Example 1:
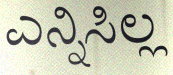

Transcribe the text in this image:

ಎನ್ನಿಸಿಲ್ಲ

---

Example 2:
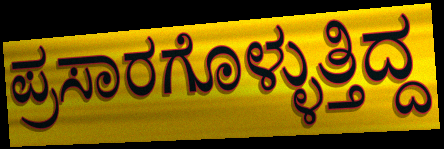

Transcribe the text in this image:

ಪ್ರಸಾರಗೊಳ್ಳುತ್ತಿದ್ದ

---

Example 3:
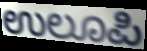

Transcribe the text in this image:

ಉಲೂಪಿ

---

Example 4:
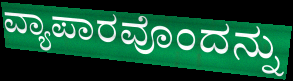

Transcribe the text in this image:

ವ್ಯಾಪಾರವೊಂದನ್ನು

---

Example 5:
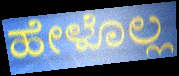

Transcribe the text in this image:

ಹೇಳೊಲ್ಲ